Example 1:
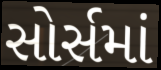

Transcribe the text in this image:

સોર્સમાં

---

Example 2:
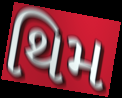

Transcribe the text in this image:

થિમ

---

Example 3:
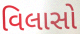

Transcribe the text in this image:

વિલાસો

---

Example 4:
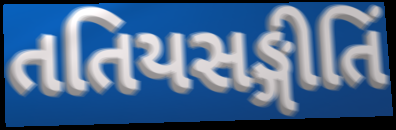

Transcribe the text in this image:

તતિયસઙ્ગીતિં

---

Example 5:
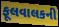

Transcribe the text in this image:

ફૂલવાલકની